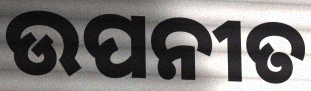
ଉପନୀତ